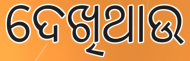
ଦେଖିଥାଉ